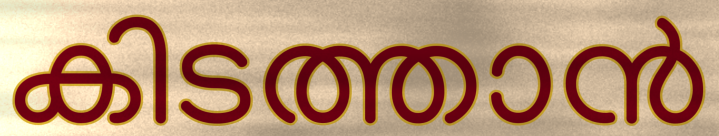
കിടത്താൻ